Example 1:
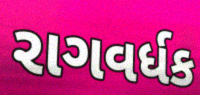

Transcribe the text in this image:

રાગવર્ધક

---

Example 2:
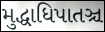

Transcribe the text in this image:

મુદ્ધાધિપાતઞ્ચ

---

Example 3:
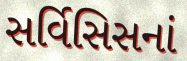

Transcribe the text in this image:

સર્વિસિસનાં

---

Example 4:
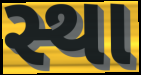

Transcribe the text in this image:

સ્થા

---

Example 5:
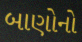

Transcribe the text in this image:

બાણોનો